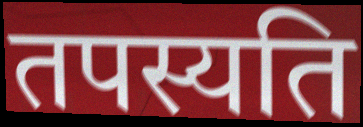
तपस्यति